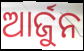
ଆର୍ଜୁନ